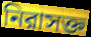
নিরাসক্ত